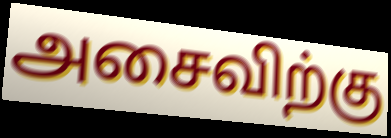
அசைவிற்கு